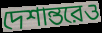
দেশান্তরেও